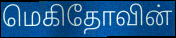
மெகிதோவின்